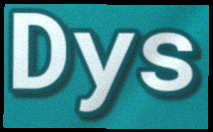
Dys